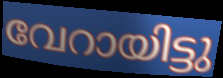
വേറായിട്ടു